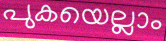
പുകയെല്ലാം